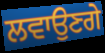
ਲਵਾਉਣਗੇ